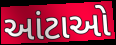
આંટાઓ